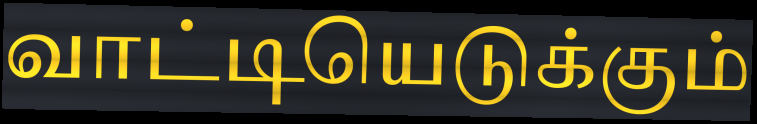
வாட்டியெடுக்கும்